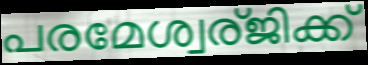
പരമേശ്വര്ജിക്ക്